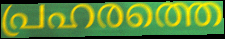
പ്രഹരത്തെ